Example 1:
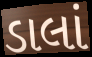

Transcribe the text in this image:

ડાલાં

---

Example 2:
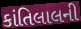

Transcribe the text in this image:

કાંતિલાલની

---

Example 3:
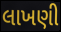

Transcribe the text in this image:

લાખણી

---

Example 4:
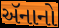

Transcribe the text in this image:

ઍનાનો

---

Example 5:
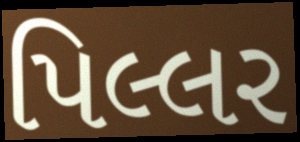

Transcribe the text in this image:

પિલ્લર